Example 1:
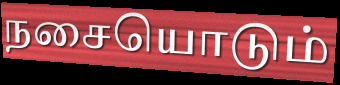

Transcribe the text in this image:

நசையொடும்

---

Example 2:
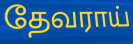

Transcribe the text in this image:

தேவராய்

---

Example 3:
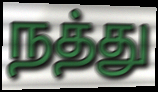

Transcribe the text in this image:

நத்து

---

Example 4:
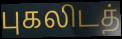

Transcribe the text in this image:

புகலிடத்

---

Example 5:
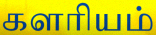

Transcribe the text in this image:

களரியம்